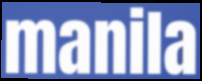
manila